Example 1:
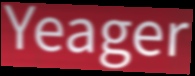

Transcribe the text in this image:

Yeager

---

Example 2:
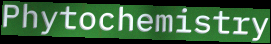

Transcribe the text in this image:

Phytochemistry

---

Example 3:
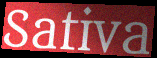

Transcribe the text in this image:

Sativa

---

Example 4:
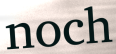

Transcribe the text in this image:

noch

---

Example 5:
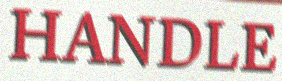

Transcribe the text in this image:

HANDLE